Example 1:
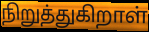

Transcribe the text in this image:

நிறுத்துகிறாள்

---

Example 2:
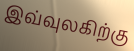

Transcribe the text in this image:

இவ்வுலகிற்கு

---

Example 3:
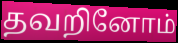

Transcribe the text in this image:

தவறினோம்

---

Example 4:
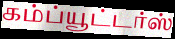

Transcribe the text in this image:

கம்ப்யூட்டர்ஸ்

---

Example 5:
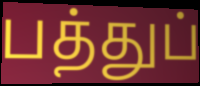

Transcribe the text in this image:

பத்துப்